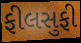
ફીલસુફી